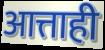
आत्ताही